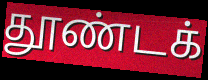
தூண்டக்